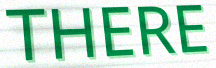
THERE